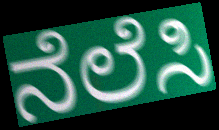
ನೆಲೆಸಿ